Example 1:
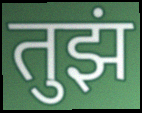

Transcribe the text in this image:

तुझं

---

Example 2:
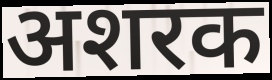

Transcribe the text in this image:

अशरक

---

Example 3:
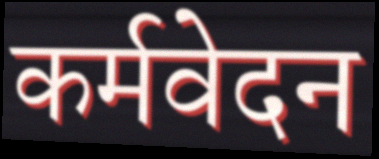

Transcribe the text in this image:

कर्मवेदन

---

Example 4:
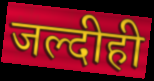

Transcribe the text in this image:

जल्दीही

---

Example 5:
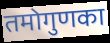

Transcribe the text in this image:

तमोगुणका